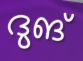
ദുങ്